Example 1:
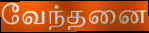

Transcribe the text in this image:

வேந்தனை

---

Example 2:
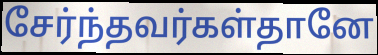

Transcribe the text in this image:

சேர்ந்தவர்கள்தானே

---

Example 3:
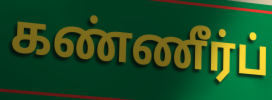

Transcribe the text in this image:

கண்ணீர்ப்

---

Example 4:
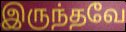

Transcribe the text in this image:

இருந்தவே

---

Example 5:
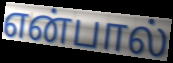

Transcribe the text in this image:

என்பால்